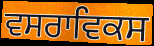
ਵਸਰਾਵਿਕਸ